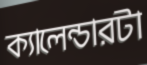
ক্যালেন্ডারটা